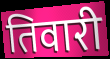
तिवारी